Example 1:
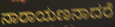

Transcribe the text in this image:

ನಾರಾಯಣನಾದರೆ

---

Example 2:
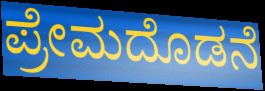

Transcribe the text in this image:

ಪ್ರೇಮದೊಡನೆ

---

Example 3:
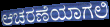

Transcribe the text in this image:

ಆಚರಣೆಯಾಗಲಿ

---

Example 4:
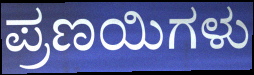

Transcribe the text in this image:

ಪ್ರಣಯಿಗಳು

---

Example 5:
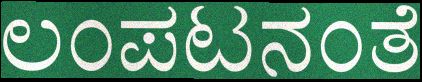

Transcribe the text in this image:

ಲಂಪಟನಂತೆ